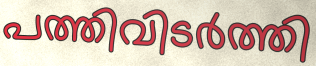
പത്തിവിടർത്തി